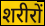
शरीरों